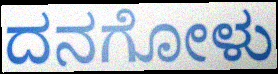
ದನಗೋಳು